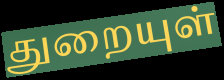
துறையுள்